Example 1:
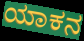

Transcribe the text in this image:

ಯಾಕನ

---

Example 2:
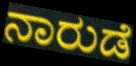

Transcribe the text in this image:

ನಾರುಡೆ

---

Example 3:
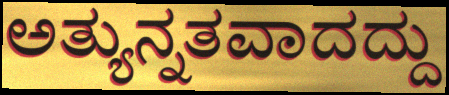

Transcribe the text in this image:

ಅತ್ಯುನ್ನತವಾದದ್ದು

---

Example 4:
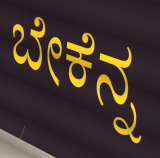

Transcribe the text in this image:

ಬೇಕೆನ್ನ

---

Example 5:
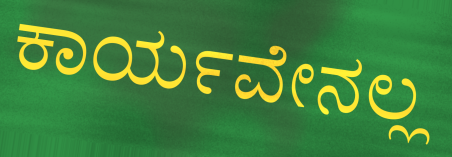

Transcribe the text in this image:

ಕಾರ್ಯವೇನಲ್ಲ